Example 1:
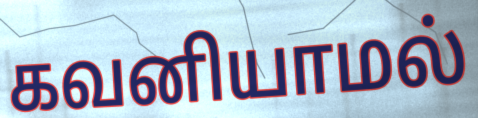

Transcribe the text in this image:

கவனியாமல்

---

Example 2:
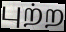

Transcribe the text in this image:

புற்ற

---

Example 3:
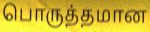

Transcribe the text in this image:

பொருத்தமான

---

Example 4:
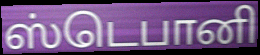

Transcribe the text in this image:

ஸ்டெபானி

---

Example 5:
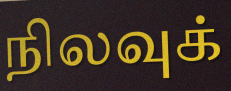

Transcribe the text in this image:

நிலவுக்